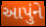
આપુંને